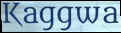
Kaggwa